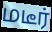
மடீர்